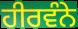
ਹੀਰਵੰਨੇ